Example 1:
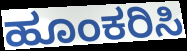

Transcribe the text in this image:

ಹೂಂಕರಿಸಿ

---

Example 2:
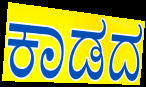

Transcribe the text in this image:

ಕಾಡದ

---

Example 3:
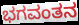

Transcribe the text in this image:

ಭಗವಂತನ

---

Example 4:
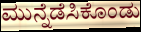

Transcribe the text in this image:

ಮುನ್ನೆಡೆಸಿಕೊಂಡು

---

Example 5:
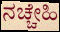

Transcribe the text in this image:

ನಚ್ಚೇಹಿ